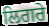
ਲਿਗਰੇ